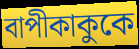
বাপীকাকুকে